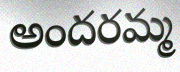
అందరమ్మ